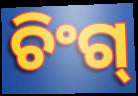
ଚିଂଗ୍